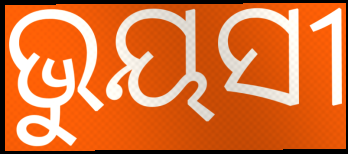
ଭୁୟସୀ